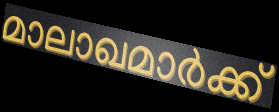
മാലാഖമാർക്ക്